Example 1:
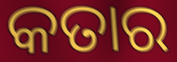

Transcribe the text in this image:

କତାର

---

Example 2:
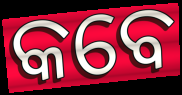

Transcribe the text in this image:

କବେ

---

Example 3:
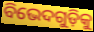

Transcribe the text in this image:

ବିଭେଦଗୁଡ଼ିକୁ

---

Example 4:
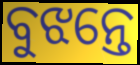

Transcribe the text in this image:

ବୁଝନ୍ତେ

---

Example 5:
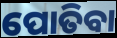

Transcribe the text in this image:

ପୋତିବା